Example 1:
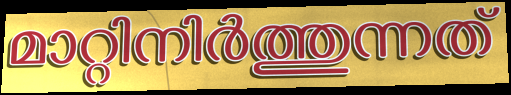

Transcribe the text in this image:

മാറ്റിനിർത്തുന്നത്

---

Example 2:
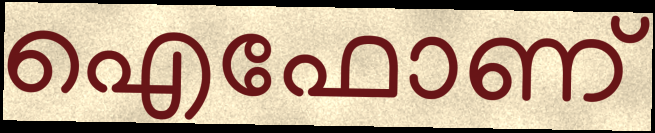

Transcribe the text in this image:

ഐഫോണ്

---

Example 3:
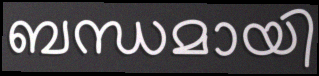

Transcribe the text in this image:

ബന്ധമായി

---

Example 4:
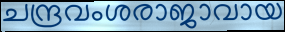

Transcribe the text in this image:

ചന്ദ്രവംശരാജാവായ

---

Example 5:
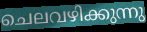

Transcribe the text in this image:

ചെലവഴിക്കുന്നു